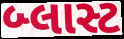
બ્લાસ્ટ